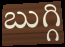
బుగ్గి